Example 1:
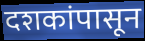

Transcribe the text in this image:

दशकांपासून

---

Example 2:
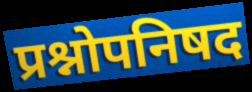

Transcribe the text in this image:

प्रश्नोपनिषद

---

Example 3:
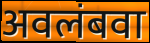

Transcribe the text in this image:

अवलंबवा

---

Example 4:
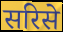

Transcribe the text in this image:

सरिसे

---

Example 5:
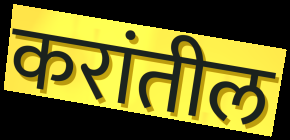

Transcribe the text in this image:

करांतील